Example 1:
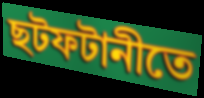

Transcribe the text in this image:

ছটফটানীতে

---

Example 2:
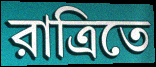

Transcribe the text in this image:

রাত্রিতে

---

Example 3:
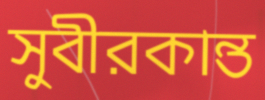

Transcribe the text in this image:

সুবীরকান্ত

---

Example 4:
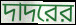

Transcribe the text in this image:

দাদরের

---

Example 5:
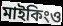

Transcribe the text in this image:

মাইকিংও